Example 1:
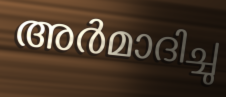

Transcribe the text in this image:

അർമാദിച്ചു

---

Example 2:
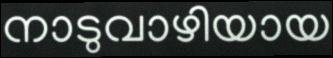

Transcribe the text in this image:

നാടുവാഴിയായ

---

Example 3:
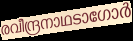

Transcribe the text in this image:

രവീന്ദ്രനാഥടാഗോർ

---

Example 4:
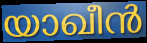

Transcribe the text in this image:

യാഖീൻ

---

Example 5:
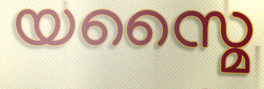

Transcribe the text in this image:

യസ്മൈ